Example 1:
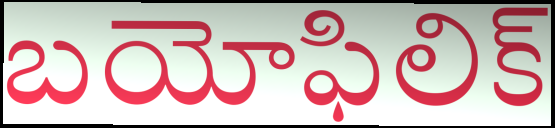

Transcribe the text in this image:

బయోఫిలిక్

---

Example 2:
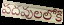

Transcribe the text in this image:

పదవులలోకి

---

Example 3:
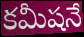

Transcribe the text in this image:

కమీషనే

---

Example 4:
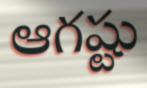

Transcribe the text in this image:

ఆగష్టు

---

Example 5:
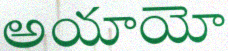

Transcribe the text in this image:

అయాయో